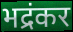
भद्रंकर